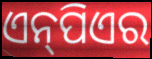
ଏନ୍‌ପିଏର